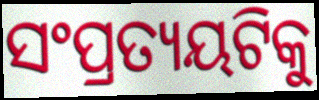
ସଂପ୍ରତ୍ୟୟଟିକୁ